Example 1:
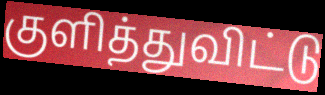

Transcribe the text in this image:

குளித்துவிட்டு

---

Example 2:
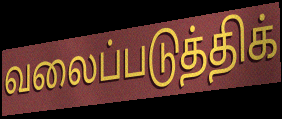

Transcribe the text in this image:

வலைப்படுத்திக்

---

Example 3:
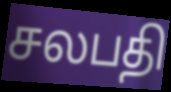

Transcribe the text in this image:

சலபதி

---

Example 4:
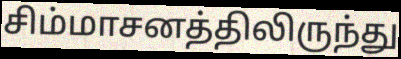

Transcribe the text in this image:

சிம்மாசனத்திலிருந்து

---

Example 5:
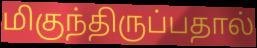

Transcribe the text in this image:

மிகுந்திருப்பதால்